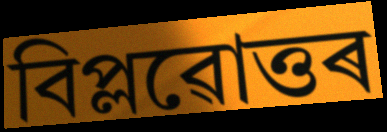
বিপ্লৱোত্তৰ